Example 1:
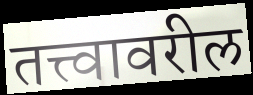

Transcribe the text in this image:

तत्त्वावरील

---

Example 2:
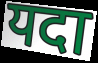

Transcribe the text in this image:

यदा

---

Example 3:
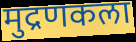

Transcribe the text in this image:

मुद्रणकला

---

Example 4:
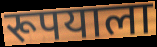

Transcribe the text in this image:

रूपयाला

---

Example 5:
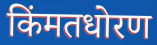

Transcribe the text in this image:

किंमतधोरण